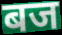
बज